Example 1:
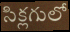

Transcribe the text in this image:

సిక్లగులో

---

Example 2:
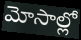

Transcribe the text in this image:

మోసాల్లో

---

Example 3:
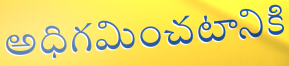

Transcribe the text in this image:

అధిగమించటానికి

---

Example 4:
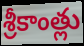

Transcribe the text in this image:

శ్రీకాంత్లు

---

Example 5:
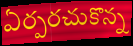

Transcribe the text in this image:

ఏర్పరచుకొన్న